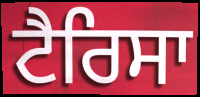
ਟੈਰਿਸਾ